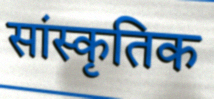
सांस्‍कृतिक